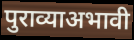
पुराव्याअभावी